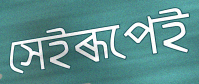
সেইৰূপেই